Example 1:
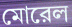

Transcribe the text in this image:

মোরেল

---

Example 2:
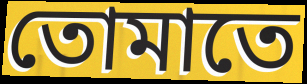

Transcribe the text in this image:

তোমাতে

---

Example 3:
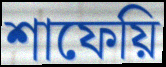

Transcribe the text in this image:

শাফেয়ি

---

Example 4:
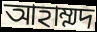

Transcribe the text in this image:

আহাম্মদ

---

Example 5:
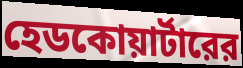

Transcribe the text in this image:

হেডকোয়ার্টারের